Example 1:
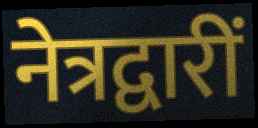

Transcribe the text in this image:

नेत्रद्वारीं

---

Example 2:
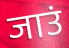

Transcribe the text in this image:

जाउं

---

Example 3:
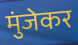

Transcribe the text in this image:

मुंजेकर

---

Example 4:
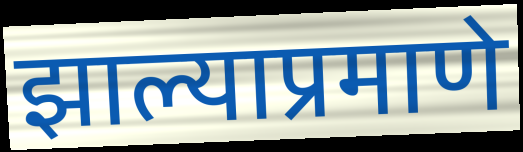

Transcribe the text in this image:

झाल्याप्रमाणे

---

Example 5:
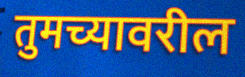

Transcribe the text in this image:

तुमच्यावरील